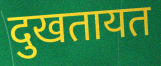
दुखतायत